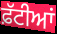
ਫ਼ੱਟੀਆਂ